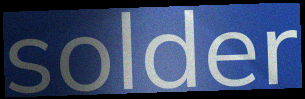
solder